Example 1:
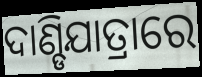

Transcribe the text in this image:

ଦାଣ୍ଡିଯାତ୍ରାରେ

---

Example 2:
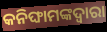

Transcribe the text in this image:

କନିଙ୍ଘାମଙ୍କଦ୍ଵାରା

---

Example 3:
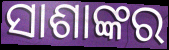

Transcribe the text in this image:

ସାଶାଙ୍କର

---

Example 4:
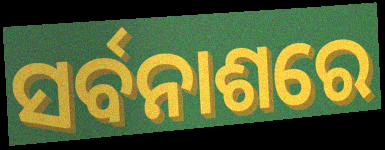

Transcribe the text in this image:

ସର୍ବନାଶରେ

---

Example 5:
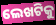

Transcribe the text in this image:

ଲେଖଟିକୁ